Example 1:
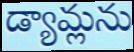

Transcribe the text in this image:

డ్యామ్లను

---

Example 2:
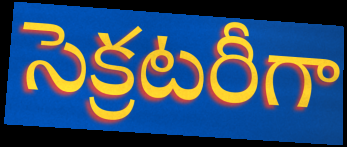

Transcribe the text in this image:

సెక్రటరీగా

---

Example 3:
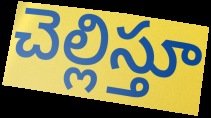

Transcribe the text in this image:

చెల్లిస్తూ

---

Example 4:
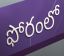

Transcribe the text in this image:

ఫోరంలో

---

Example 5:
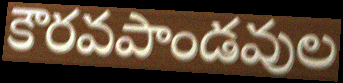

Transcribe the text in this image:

కౌరవపాండవుల